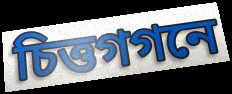
চিত্তগগনে